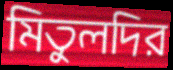
মিতুলদির